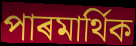
পাৰমাৰ্থিক